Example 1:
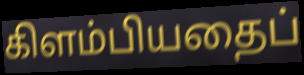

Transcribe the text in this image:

கிளம்பியதைப்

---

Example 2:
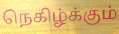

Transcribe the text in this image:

நெகிழ்க்கும்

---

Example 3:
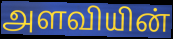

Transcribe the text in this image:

அளவியின்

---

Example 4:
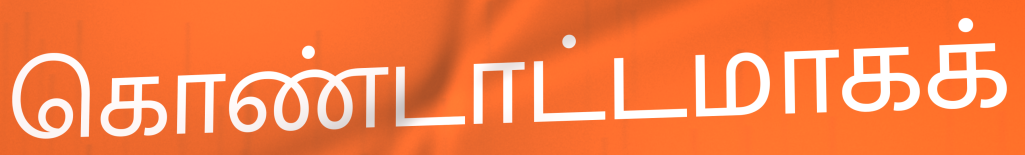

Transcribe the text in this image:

கொண்டாட்டமாகக்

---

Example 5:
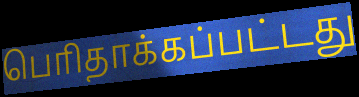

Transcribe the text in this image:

பெரிதாக்கப்பட்டது